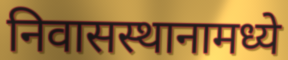
निवासस्थानामध्ये